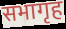
सभागृह